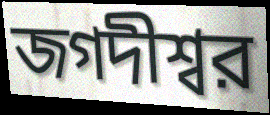
জগদীশ্বর